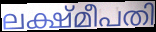
ലക്ഷ്മീപതി